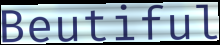
Beutiful